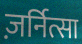
ज़र्नित्सा